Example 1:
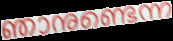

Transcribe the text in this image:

ഞാനുണ്ടെന്ന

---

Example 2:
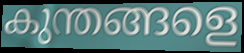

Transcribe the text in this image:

കുന്തങ്ങളെ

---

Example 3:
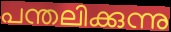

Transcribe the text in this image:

പന്തലിക്കുന്നു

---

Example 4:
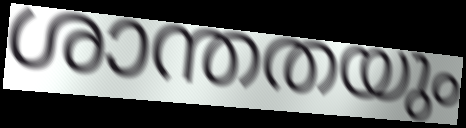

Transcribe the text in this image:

ശാന്തതയും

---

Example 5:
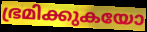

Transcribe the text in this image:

ഭ്രമിക്കുകയോ